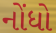
નોંધો